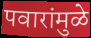
पवारांमुळे